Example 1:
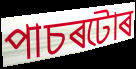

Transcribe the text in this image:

পাচৰটোৰ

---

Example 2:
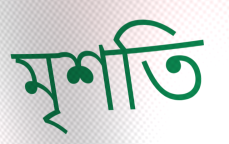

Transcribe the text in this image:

মৃশতি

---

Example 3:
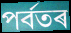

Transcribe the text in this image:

পৰ্বতৰ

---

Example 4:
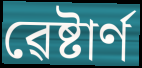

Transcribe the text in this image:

ৱেষ্টাৰ্ণ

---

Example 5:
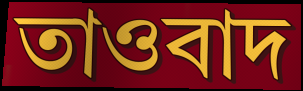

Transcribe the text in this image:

তাওবাদ